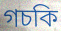
গচকি